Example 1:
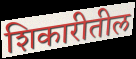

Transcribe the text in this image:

शिकारीतील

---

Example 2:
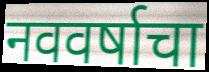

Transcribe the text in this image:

नववर्षाचा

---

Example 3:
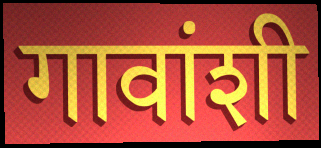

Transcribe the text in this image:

गावांशी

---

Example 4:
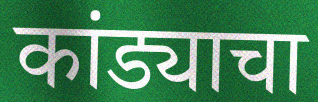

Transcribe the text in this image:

कांड्याचा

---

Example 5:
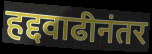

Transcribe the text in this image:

हद्दवाढीनंतर